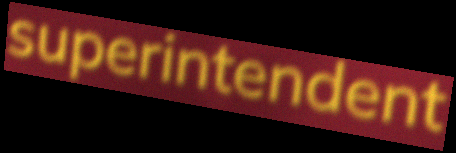
superintendent